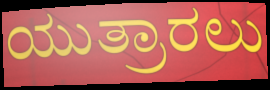
ಯುತ್ರಾರಲು